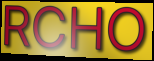
RCHO